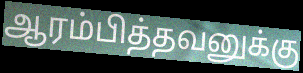
ஆரம்பித்தவனுக்கு